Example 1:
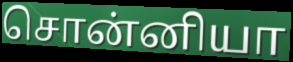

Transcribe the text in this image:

சொன்னியா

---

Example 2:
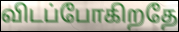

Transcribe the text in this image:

விடப்போகிறதே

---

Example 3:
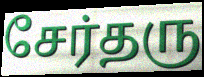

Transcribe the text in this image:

சேர்தரு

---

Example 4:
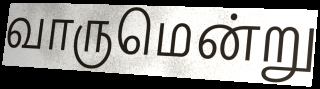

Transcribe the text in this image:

வாருமென்று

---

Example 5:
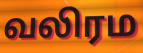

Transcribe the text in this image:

வலிரம